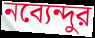
নব্যেন্দুর